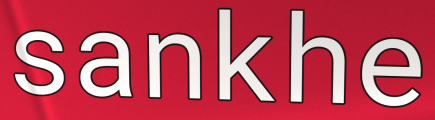
sankhe